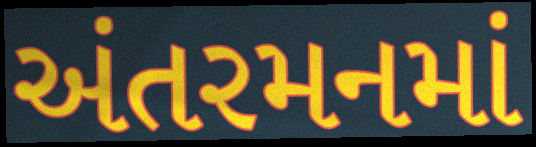
અંતરમનમાં